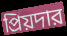
প্রিয়দার